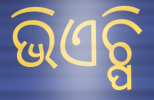
ଭିଏଚ୍ପି